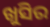
ଖୁସିର